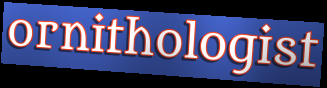
ornithologist